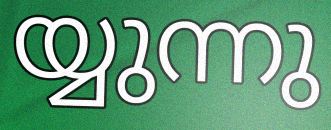
യ്യുന്നു